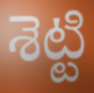
శెట్టి